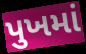
પુખમાં